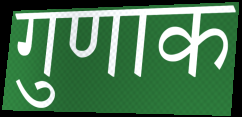
गुणाक